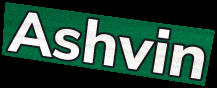
Ashvin